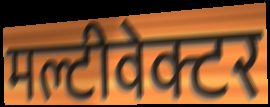
मल्टीवेक्टर